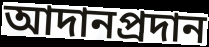
আদানপ্রদান